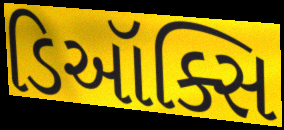
ડિઑક્સિ